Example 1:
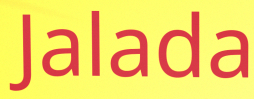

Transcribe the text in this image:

Jalada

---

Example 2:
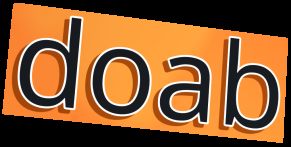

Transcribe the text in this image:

doab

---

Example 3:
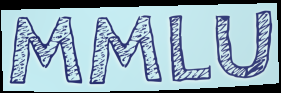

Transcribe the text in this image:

MMLU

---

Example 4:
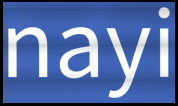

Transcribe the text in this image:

nayi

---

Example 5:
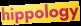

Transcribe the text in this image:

hippology